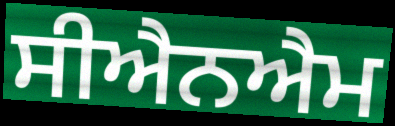
ਸੀਐਨਐਮ